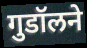
गुडॉलने